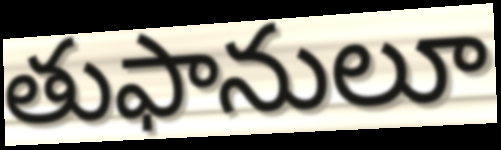
తుఫానులూ